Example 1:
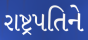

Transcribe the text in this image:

રાષ્ટ્રપતિને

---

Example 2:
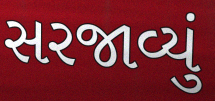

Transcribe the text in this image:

સરજાવ્યું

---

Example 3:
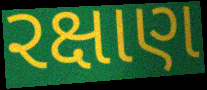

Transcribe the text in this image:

રક્ષાણ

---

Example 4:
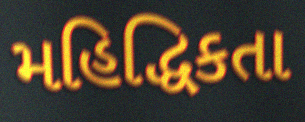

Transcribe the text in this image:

મહિદ્ધિકતા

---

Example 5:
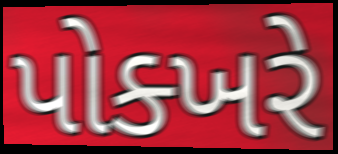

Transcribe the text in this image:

પોક્ખરે